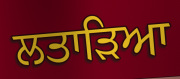
ਲਤਾੜਿਆ